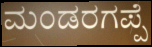
ಮಂಡರಗಪ್ಪೆ